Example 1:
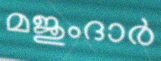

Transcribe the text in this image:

മജുംദാർ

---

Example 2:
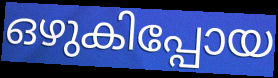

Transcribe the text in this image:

ഒഴുകിപ്പോയ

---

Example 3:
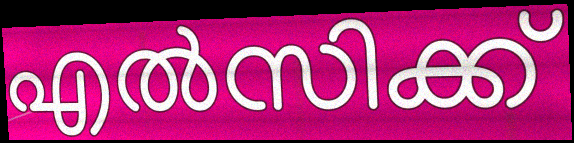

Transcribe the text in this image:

എൽസിക്ക്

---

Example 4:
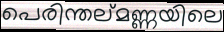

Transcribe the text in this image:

പെരിന്തല്മണ്ണയിലെ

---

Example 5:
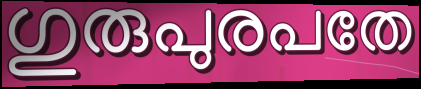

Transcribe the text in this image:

ഗുരുപുരപതേ